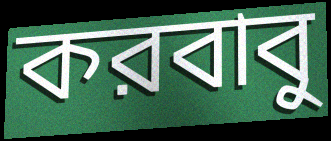
করবাবু